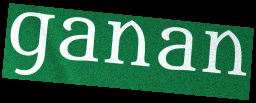
ganan